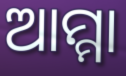
ଆମ୍ମା